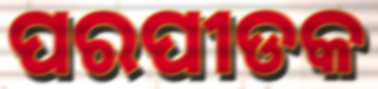
ପରପୀଡକ